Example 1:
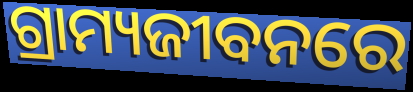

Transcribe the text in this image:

ଗ୍ରାମ୍ୟଜୀବନରେ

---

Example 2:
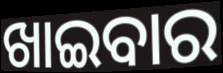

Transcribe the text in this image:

ଖାଇବାର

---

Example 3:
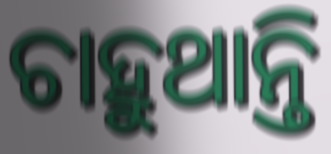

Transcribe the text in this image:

ଚାହୁଥାନ୍ତି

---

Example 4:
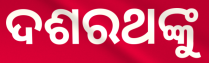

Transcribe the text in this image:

ଦଶରଥଙ୍କୁ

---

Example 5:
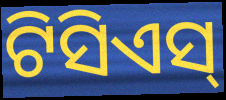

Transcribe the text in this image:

ଟିସିଏସ୍